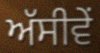
ਅੱਸੀਵੇਂ